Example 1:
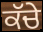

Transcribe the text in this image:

ਕੱਚੇ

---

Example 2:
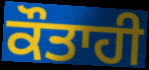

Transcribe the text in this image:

ਕੌਤਾਹੀ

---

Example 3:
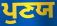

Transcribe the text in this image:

ਪੁਣਯ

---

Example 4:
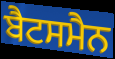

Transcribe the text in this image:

ਬੈਟਸਮੈਨ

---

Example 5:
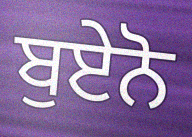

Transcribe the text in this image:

ਬੁਏਨੋ